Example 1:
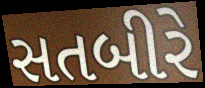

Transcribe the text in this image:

સતબીરે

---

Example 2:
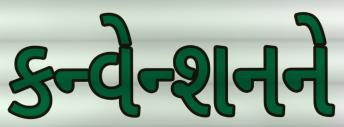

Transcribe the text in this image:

કન્વેન્શનને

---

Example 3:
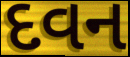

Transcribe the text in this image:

દવન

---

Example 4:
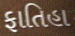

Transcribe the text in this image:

ફાતિહા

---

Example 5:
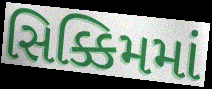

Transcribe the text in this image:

સિક્કિમમાં